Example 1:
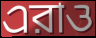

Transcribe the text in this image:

এরাও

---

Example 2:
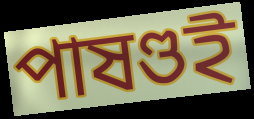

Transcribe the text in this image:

পাষণ্ডই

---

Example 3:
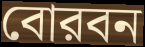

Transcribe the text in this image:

বোরবন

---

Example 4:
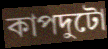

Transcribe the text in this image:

কাপদুটো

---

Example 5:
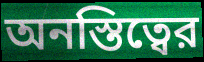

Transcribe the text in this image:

অনস্তিত্বের